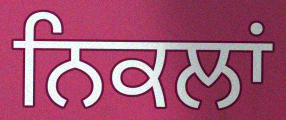
ਨਿਕਲਾਂ